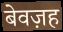
बेवज़ह